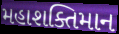
મહાશક્તિમાન